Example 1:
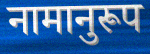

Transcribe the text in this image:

नामानुरूप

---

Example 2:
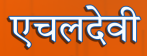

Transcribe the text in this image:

एचलदेवी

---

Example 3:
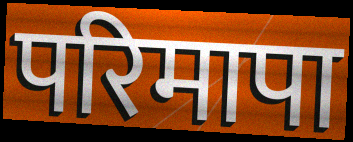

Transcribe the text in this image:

परिमापा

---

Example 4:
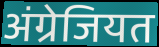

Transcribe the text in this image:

अंग्रेजियत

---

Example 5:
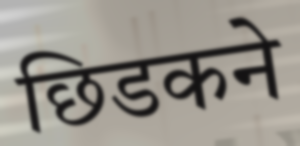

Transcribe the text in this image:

छिडकने